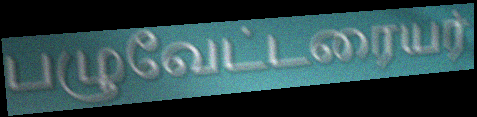
பழுவேட்டரையர்